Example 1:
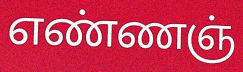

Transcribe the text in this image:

எண்ணஞ்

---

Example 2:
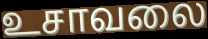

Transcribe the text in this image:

உசாவலை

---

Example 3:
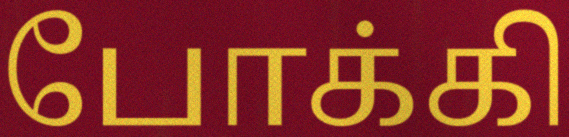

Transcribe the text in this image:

போக்கி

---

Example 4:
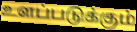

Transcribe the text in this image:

உளப்படுக்கும்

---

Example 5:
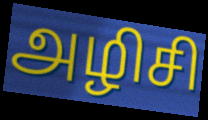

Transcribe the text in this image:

அழிசி